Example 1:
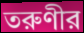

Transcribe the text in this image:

তরুণীর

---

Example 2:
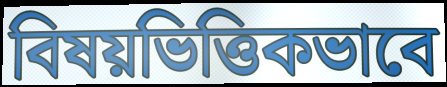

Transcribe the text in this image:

বিষয়ভিত্তিকভাবে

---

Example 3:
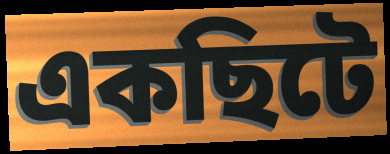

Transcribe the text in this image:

একছিটে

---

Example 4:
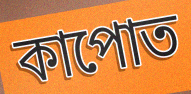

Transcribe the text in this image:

কাপোত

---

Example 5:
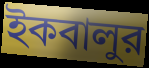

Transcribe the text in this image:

ইকবালুর